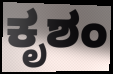
ಕೃಶಂ